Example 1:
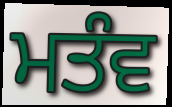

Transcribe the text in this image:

ਮਤੰਵ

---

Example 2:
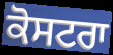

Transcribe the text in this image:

ਕੋਸਟਰਾ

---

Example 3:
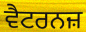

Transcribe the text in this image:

ਵੈਟਰਨਜ਼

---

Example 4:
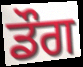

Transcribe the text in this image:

ਡੌਗ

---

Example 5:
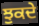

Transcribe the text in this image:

ਝੁਕਦੇ